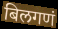
बिलगणं